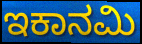
ಇಕಾನಮಿ